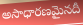
అసాధారణమైనదీ